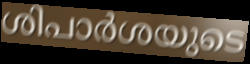
ശിപാർശയുടെ